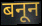
बनून